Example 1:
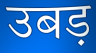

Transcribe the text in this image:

उबड़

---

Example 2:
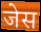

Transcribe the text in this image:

जेस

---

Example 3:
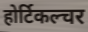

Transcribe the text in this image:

होर्टिकल्चर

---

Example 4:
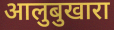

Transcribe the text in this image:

आलुबुखारा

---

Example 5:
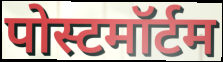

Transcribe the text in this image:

पोस्टमॉर्टम